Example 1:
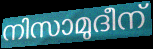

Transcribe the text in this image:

നിസാമുദീന്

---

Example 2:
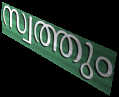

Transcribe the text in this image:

സ്വത്തും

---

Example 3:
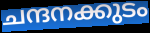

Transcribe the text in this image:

ചന്ദനക്കുടം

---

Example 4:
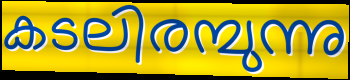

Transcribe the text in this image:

കടലിരമ്പുന്നു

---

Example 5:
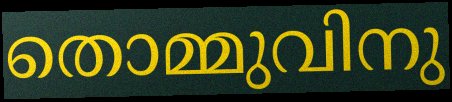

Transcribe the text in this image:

തൊമ്മുവിനു